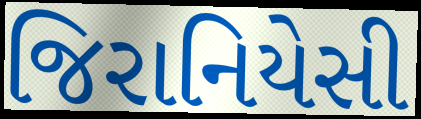
જિરાનિયેસી